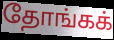
தோங்கக்